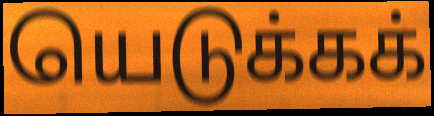
யெடுக்கக்